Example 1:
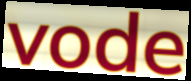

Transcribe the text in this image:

vode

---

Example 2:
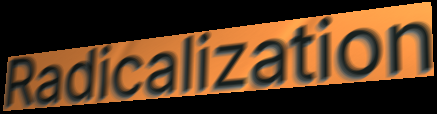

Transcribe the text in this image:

Radicalization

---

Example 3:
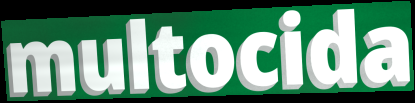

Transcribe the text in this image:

multocida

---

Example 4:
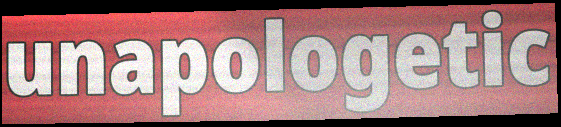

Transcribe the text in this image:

unapologetic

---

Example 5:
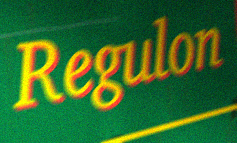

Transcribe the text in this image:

Regulon